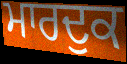
ਮਾਰਦੁਕ